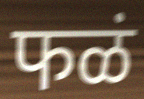
फळं